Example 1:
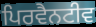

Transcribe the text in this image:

ਪਿਰਵੈਨਟੀਵ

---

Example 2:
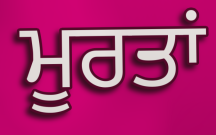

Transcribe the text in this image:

ਮੂਰਤਾਂ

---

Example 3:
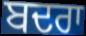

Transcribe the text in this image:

ਬਦਰਾ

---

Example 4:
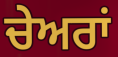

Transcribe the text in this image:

ਚੇਅਰਾਂ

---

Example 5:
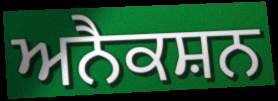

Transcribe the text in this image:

ਅਨੈਕਸ਼ਨ